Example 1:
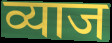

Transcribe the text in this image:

व्याज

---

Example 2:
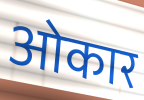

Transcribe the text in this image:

ओकार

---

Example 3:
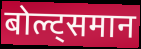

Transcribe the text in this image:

बोल्ट्समान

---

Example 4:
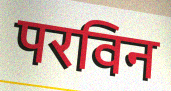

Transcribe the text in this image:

परविन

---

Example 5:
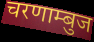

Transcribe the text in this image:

चरणाम्बुज